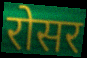
रोसर